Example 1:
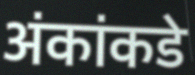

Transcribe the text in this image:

अंकांकडे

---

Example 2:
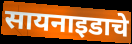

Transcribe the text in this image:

सायनाइडाचे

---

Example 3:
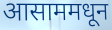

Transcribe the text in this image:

आसाममधून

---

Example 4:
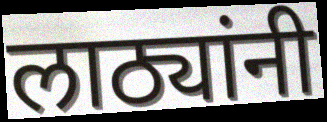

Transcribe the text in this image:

लाठ्यांनी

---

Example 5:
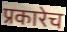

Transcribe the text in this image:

प्रकारेच